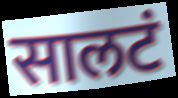
सालटं